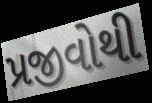
પ્રજીવોથી